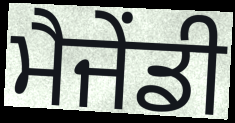
ਮੈਜੇਂਡੀ